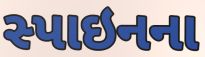
સ્પાઇનના